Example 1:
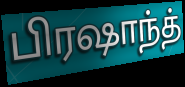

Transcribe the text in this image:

பிரஷாந்த்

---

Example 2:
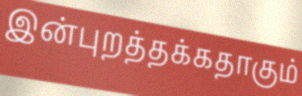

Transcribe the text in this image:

இன்புறத்தக்கதாகும்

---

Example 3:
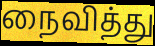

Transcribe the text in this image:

நைவித்து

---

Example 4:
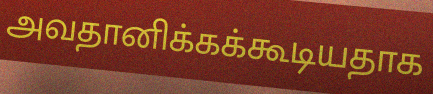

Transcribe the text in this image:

அவதானிக்கக்கூடியதாக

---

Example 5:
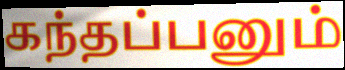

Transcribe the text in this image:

கந்தப்பனும்